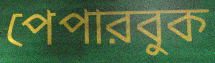
পেপারবুক